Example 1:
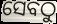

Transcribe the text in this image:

ସେବଠୁ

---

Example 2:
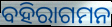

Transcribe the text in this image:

ବହିରାଗମନ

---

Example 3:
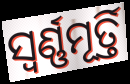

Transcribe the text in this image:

ସ୍ଵର୍ଣ୍ଣମୂର୍ତ୍ତି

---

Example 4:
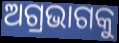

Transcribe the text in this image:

ଅଗ୍ରଭାଗକୁ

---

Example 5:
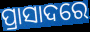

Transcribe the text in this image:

ପ୍ରାସାଦରେ